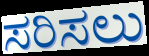
ಸರಿಸಲು